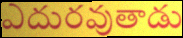
ఎదురవుతాడు